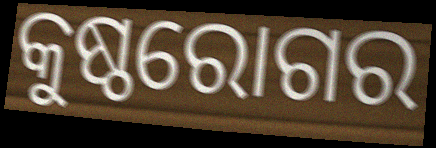
କୁଷ୍ଠରୋଗର